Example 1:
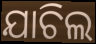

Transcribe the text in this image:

ଯାଚିଲ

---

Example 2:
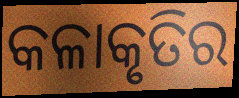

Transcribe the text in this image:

କଳାକୃତିର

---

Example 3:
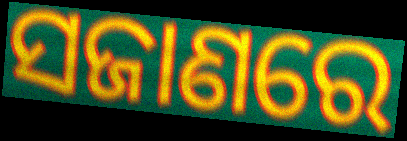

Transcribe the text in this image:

ସଜାଣରେ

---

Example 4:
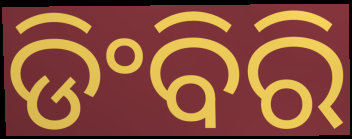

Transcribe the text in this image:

ଡିଂବିରି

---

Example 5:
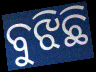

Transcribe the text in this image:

ବୁଝିଛି